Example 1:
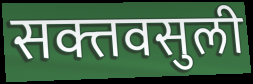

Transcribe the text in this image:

सक्तवसुली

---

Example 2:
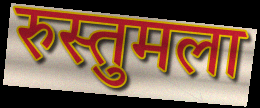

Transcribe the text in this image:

रुस्तुमला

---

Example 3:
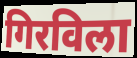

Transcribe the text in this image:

गिरविला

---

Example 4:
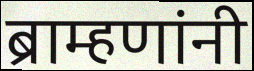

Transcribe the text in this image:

ब्राम्हणांनी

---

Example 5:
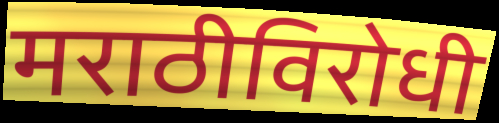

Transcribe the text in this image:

मराठीविरोधी